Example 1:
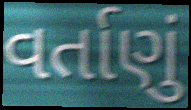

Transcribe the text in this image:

વર્તાણું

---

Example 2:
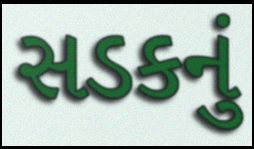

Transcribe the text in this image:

સડકનું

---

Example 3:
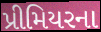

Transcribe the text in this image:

પ્રીમિયરના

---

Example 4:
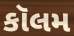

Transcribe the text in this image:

કૉલમ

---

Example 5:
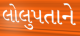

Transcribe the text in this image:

લોલુપતાને